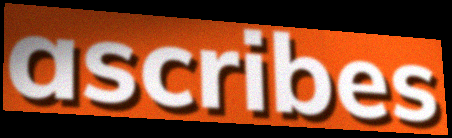
ascribes